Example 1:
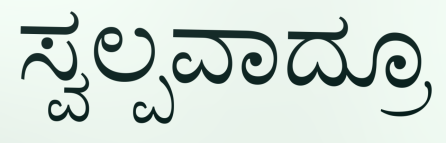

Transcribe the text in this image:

ಸ್ವಲ್ಪವಾದ್ರೂ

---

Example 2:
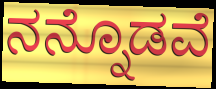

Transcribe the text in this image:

ನನ್ನೊಡವೆ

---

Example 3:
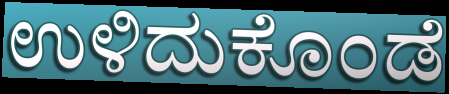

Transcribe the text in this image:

ಉಳಿದುಕೊಂಡೆ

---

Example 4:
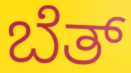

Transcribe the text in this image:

ಬೆತ್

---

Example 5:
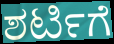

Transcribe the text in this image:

ಶರ್ಟಿಗೆ